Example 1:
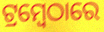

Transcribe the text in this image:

ଟ୍ରମ୍ବେଠାରେ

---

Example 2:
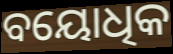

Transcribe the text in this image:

ବୟୋଧିକ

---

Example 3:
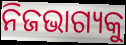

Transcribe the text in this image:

ନିଜଭାଗ୍ୟକୁ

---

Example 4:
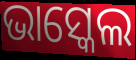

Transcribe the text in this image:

ଭାସ୍କେଲ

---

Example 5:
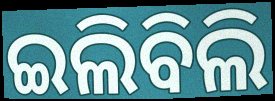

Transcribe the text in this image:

ଇଲିବିଲି